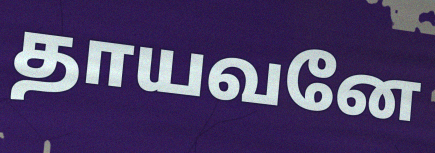
தாயவனே